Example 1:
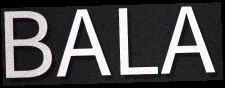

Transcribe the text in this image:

BALA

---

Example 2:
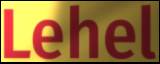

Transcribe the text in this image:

Lehel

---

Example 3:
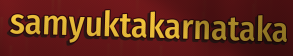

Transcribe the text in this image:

samyuktakarnataka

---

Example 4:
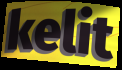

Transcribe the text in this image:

kelit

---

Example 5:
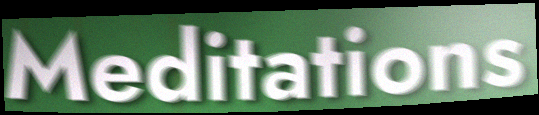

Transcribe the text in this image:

Meditations